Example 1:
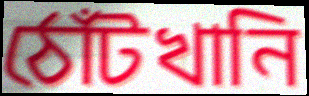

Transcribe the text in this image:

ঠোঁটখানি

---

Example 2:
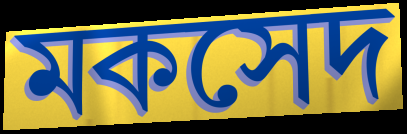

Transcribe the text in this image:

মকসেদ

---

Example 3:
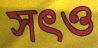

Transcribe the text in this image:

সৎও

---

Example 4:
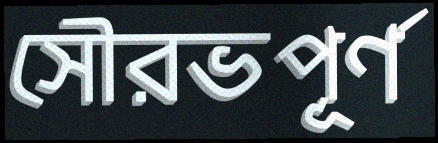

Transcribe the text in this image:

সৌরভপূর্ণ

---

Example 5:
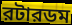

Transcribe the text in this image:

রটারডম